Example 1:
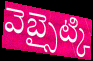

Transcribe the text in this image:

వెబ్సైట్కి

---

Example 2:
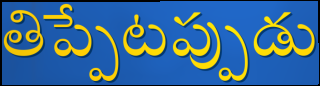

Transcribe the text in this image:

తిప్పేటప్పుడు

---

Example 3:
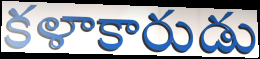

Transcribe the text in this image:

కళాకారుడు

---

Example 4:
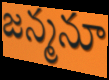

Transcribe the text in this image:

జన్మనూ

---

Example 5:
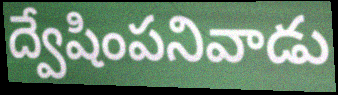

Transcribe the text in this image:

ద్వేషింపనివాడు